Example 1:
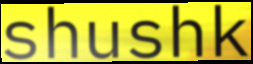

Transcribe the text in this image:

shushk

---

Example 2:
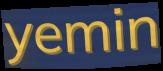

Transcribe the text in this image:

yemin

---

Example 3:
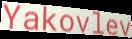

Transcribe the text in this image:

Yakovlev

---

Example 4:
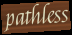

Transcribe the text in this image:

pathless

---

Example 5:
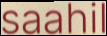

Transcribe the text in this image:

saahil